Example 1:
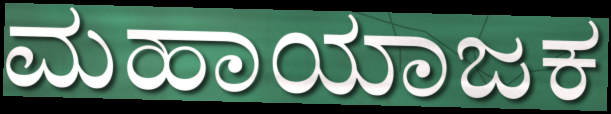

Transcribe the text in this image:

ಮಹಾಯಾಜಕ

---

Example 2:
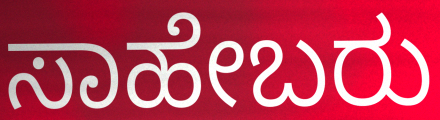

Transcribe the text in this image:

ಸಾಹೇಬರು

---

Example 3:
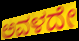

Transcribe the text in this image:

ಅವಳದೇ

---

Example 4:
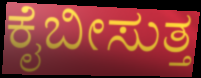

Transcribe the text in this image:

ಕೈಬೀಸುತ್ತ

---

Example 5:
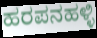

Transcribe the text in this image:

ಹರಪನಹಳ್ಳಿ